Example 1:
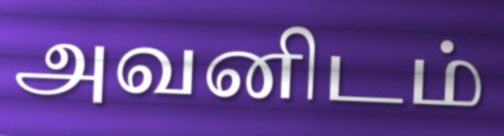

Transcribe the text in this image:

அவனிடம்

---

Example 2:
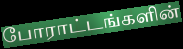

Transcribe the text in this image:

போராட்டங்களின்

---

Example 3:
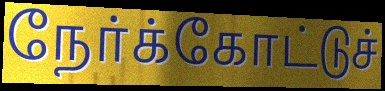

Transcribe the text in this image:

நேர்க்கோட்டுச்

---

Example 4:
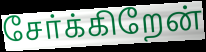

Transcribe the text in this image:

சேர்க்கிறேன்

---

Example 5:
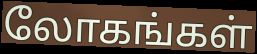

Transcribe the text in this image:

லோகங்கள்